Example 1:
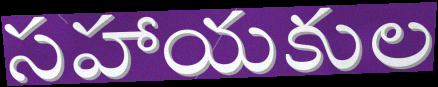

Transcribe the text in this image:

సహాయకుల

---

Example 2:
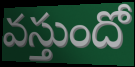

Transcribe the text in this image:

వస్తుందో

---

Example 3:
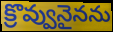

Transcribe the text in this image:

క్రొవ్వునైనను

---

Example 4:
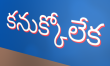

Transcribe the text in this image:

కనుక్కోలేక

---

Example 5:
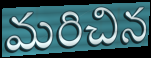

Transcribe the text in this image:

మరిచిన